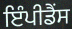
ਇੰਪੀਡੈਂਸ